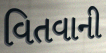
વિતવાની